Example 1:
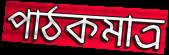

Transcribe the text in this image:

পাঠকমাত্র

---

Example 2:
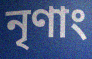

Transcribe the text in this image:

নৃণাং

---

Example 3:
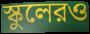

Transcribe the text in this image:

স্কুলেরও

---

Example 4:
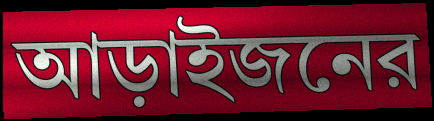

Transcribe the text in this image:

আড়াইজনের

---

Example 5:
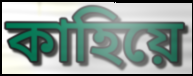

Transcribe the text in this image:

কাহিয়ে